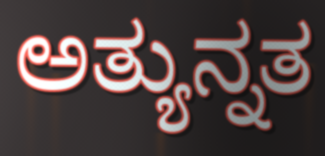
ಅತ್ಯುನ್ನತ